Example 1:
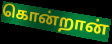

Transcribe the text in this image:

கொன்றான்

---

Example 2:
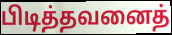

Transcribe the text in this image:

பிடித்தவனைத்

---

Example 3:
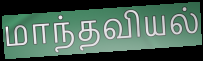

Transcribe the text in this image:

மாந்தவியல்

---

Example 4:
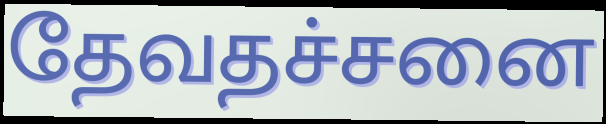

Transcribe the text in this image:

தேவதச்சனை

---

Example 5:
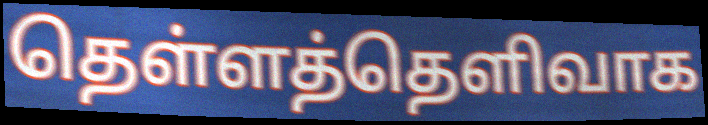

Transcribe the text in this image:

தெள்ளத்தெளிவாக